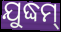
ଯୁଦ୍ଧମ୍